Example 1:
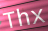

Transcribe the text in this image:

Thx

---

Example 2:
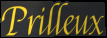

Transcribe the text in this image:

Prilleux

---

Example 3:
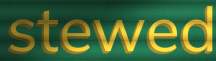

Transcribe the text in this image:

stewed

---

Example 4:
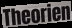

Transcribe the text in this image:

Theorien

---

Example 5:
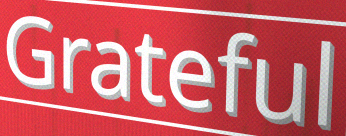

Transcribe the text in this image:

Grateful